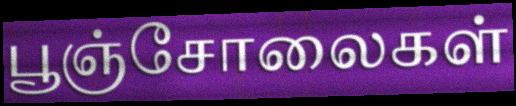
பூஞ்சோலைகள்